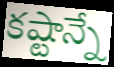
కష్టాన్నే